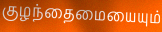
குழந்தைமையையும்